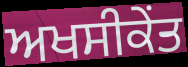
ਅਖਸੀਕੇਂਤ